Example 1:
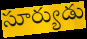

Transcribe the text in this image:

సూర్యుడు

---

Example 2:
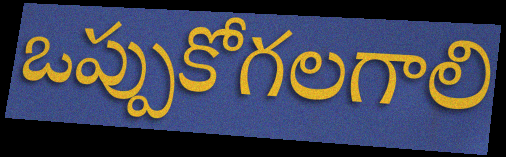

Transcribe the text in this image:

ఒప్పుకోగలగాలి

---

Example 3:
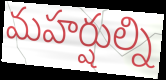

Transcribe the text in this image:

మహర్షుల్ని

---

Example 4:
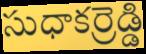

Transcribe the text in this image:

సుధాకర్రెడ్డి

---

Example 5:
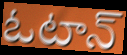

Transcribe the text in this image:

ఓటాన్